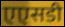
एएसडी